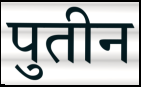
पुतीन